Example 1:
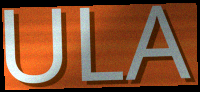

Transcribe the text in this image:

ULA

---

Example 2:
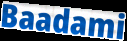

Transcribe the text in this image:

Baadami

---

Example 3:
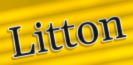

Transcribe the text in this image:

Litton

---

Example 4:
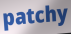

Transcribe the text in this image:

patchy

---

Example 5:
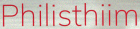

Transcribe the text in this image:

Philisthiim